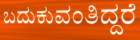
ಬದುಕುವಂತಿದ್ದರೆ